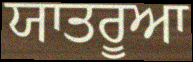
ਯਾਤਰੂਆ